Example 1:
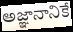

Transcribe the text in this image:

అజ్ఞానానికే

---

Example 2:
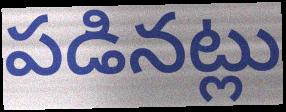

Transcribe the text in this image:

పడినట్లు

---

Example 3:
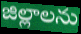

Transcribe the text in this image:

జిల్లాలను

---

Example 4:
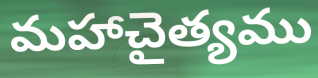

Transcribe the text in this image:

మహాచైత్యము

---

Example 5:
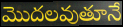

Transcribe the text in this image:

మొదలవుతూనే